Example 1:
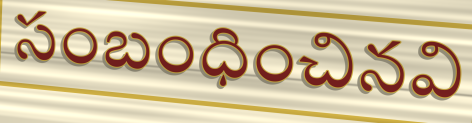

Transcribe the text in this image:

సంబంధించినవి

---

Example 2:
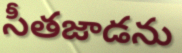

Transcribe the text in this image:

సీతజాడను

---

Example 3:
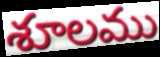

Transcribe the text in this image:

శూలము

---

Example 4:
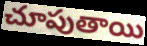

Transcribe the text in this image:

చూపుతాయి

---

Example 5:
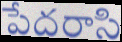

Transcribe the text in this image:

పేదరాసి